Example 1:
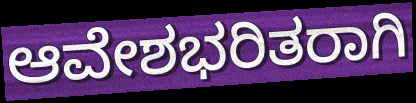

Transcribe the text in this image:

ಆವೇಶಭರಿತರಾಗಿ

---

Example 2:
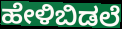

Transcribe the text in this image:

ಹೇಳಿಬಿಡಲೆ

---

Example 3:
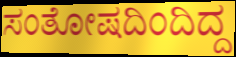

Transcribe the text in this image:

ಸಂತೋಷದಿಂದಿದ್ದ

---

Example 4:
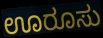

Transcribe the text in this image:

ಊರೂಸು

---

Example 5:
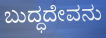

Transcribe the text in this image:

ಬುದ್ಧದೇವನು